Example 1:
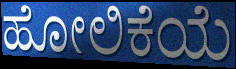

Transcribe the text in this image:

ಹೋಲಿಕೆಯೆ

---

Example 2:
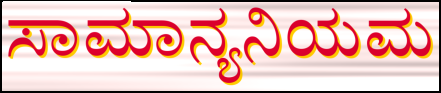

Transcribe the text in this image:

ಸಾಮಾನ್ಯನಿಯಮ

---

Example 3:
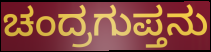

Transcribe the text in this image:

ಚಂದ್ರಗುಪ್ತನು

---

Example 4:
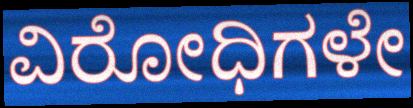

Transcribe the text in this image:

ವಿರೋಧಿಗಳೇ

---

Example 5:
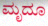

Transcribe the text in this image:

ಮೃದೂ